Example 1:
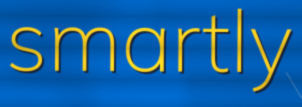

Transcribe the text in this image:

smartly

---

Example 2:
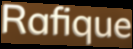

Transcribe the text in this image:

Rafique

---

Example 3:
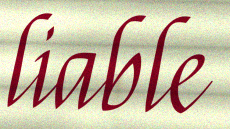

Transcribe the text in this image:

liable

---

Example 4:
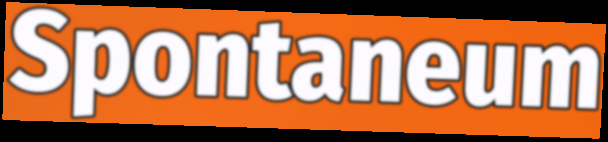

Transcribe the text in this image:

Spontaneum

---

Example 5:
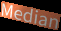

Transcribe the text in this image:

Median